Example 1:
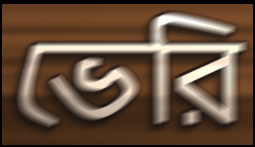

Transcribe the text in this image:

ভেরি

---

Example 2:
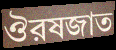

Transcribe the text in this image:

ঔরষজাত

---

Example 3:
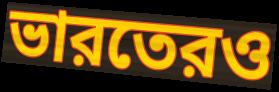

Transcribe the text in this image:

ভারতেরও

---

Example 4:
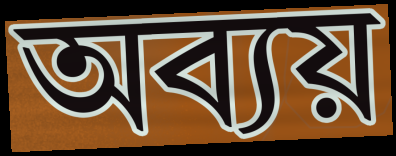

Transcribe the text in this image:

অব্যয়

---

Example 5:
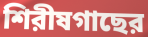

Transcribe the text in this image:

শিরীষগাছের